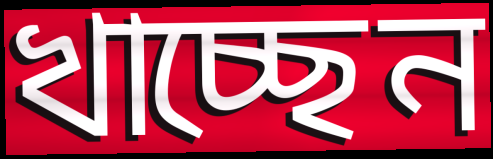
খাচ্ছেন